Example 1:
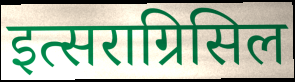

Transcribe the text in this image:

इत्सराग्रिसिल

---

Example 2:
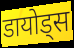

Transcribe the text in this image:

डायोड्स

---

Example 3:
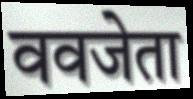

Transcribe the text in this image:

ववजेता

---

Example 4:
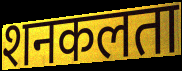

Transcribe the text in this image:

शनकलता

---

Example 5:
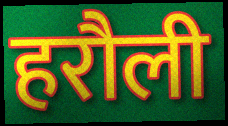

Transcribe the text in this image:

हरौली